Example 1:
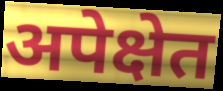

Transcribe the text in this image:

अपेक्षेत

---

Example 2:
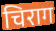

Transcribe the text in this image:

चिराग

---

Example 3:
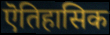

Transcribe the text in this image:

ऎतिहासिक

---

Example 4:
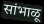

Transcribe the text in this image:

सांभाळू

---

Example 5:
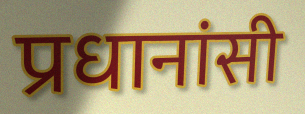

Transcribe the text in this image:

प्रधानांसी